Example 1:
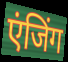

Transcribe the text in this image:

एंजिंग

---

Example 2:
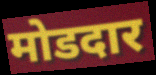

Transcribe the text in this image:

मोडदार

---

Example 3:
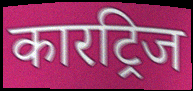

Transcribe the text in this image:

कारट्रिज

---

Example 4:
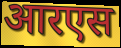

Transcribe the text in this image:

आरएस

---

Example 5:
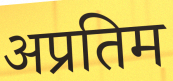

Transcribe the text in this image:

अप्रतिम